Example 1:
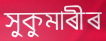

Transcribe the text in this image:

সুকুমাৰীৰ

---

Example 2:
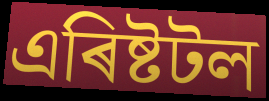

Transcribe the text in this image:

এৰিষ্টটল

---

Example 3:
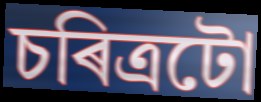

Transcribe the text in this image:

চৰিত্ৰটো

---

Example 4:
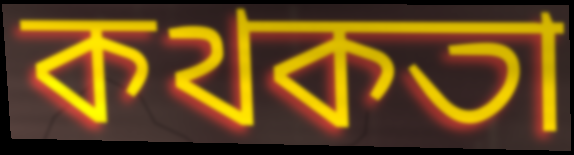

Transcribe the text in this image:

কথকতা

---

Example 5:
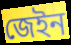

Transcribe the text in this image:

জেইন